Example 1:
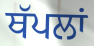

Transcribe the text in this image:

ਥੱਪਲਾਂ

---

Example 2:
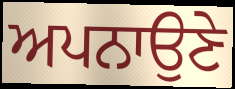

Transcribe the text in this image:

ਅਪਨਾਉਣੇ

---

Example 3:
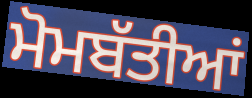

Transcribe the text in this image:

ਮੋਮਬੱਤੀਆਂ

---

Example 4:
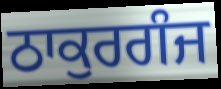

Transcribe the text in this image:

ਠਾਕੁਰਗੰਜ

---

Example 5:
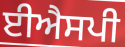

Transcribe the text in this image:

ਈਐਸਪੀ